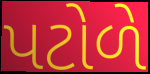
પટોળે